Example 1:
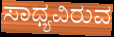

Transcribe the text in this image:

ಸಾಧ್ಯವಿರುವ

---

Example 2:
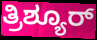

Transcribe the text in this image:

ತ್ರಿಶ್ಯೂರ್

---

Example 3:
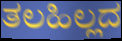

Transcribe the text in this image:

ತಲಹಿಲ್ಲದ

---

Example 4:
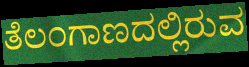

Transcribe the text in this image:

ತೆಲಂಗಾಣದಲ್ಲಿರುವ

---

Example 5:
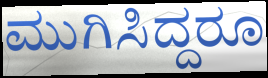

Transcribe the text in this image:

ಮುಗಿಸಿದ್ದರೂ